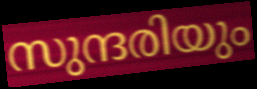
സുന്ദരിയും